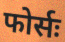
फोर्सः